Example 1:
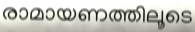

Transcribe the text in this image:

രാമായണത്തിലൂടെ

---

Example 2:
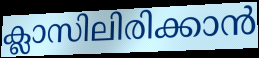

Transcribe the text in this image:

ക്ലാസിലിരിക്കാൻ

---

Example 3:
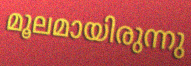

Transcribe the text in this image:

മൂലമായിരുന്നു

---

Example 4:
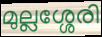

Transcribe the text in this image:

മുല്ലശ്ശേരി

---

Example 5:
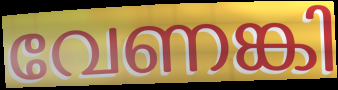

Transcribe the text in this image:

വേണങ്കി